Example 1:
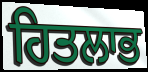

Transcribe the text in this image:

ਹਿਤਲਾਭ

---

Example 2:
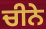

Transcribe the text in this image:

ਚੀਨੇ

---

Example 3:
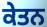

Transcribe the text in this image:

ਕੇਤਨ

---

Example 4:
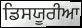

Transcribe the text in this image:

ਡਿਸਯੂਰੀਆ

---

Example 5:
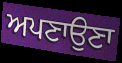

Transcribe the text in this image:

ਅਪਣਾਉਣਾ